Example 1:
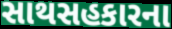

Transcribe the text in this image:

સાથસહકારના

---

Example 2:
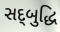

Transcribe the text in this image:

સદ્‌બુદ્ધિ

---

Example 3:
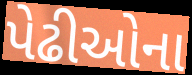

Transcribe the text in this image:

પેઢીઓના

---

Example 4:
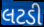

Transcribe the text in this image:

લટડી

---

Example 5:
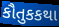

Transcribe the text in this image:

કૌતુકકથા